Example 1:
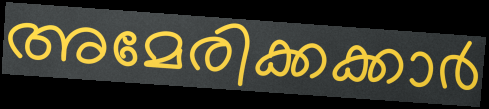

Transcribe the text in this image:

അമേരിക്കക്കാർ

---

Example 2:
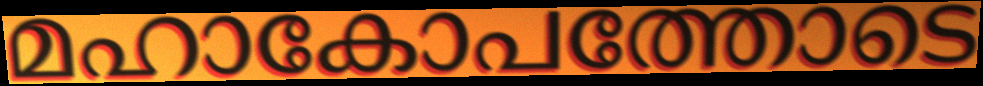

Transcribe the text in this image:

മഹാകോപത്തോടെ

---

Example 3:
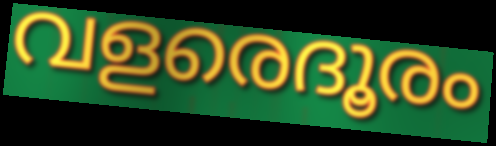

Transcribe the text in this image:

വളരെദൂരം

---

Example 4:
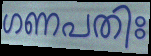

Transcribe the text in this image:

ഗണപതിഃ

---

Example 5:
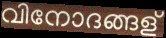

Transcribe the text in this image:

വിനോദങ്ങള്